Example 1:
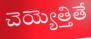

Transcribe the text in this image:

చెయ్యెత్తితే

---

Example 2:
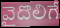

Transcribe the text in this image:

వైదొలిగే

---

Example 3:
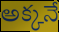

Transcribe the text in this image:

అక్కనే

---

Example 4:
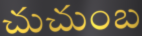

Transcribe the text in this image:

చుచుంబ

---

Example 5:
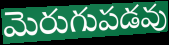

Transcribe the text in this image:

మెరుగుపడవు